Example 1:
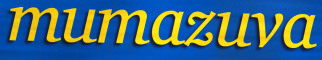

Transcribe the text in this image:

mumazuva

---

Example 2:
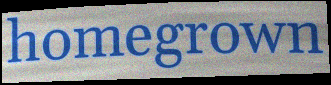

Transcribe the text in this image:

homegrown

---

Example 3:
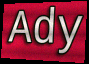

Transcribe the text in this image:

Ady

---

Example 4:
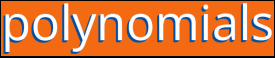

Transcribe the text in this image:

polynomials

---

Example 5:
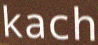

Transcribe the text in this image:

kach